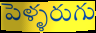
పెళ్ళరుగు